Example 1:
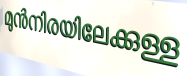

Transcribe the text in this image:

മുൻനിരയിലേക്കുള്ള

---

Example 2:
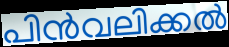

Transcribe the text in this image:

പിൻവലിക്കൽ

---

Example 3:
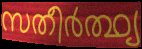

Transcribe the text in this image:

സതീർത്ഥ്യ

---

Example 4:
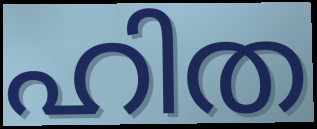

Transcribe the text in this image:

ഹിത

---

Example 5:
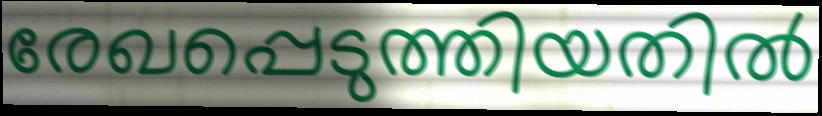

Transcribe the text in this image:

രേഖപ്പെടുത്തിയതിൽ